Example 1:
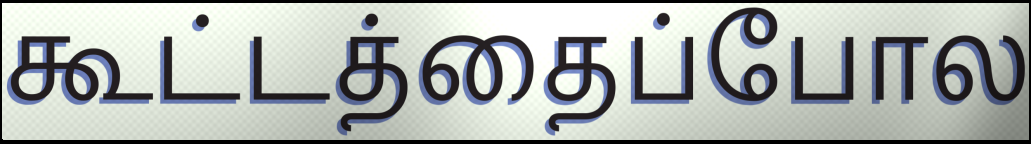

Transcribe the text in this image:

கூட்டத்தைப்போல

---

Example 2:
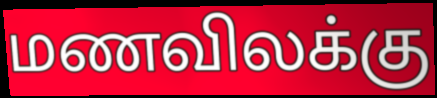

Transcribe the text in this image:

மணவிலக்கு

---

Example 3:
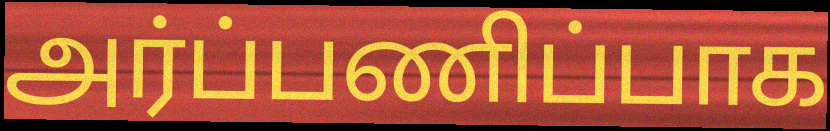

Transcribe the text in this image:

அர்ப்பணிப்பாக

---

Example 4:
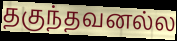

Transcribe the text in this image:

தகுந்தவனல்ல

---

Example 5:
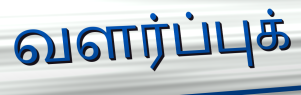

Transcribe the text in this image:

வளர்ப்புக்